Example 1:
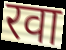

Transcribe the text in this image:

रवा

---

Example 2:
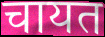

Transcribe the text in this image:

चायत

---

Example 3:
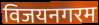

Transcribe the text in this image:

विजयनगरम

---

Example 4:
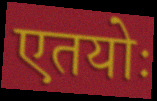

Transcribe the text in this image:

एतयोः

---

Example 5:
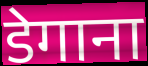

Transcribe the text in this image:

डेगाना